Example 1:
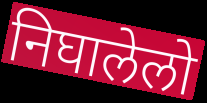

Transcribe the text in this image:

निघालेलो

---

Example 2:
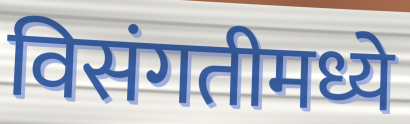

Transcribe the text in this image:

विसंगतीमध्ये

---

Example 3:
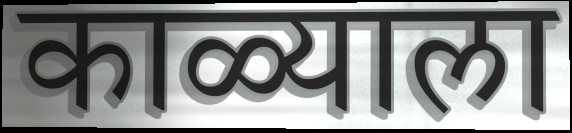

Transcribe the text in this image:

काळ्याला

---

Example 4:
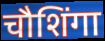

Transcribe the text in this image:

चौशिंगा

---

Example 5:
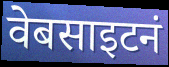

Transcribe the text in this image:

वेबसाइटनं